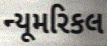
ન્યૂમરિકલ